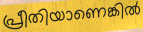
പ്രീതിയാണെങ്കിൽ